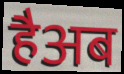
हैअब